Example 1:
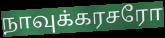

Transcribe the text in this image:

நாவுக்கரசரோ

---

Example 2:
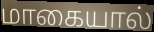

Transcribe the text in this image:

மாகையால்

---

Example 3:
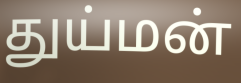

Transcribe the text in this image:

துய்மன்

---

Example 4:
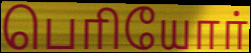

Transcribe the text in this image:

பெரியோர்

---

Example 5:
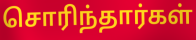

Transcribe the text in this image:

சொரிந்தார்கள்